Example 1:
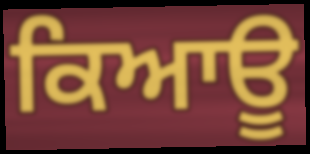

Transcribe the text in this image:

ਕਿਆਊ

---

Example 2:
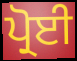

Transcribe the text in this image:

ਪ੍ਰੋਈ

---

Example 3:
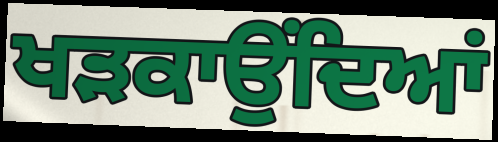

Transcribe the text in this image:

ਖੜਕਾਉਂਦਿਆਂ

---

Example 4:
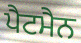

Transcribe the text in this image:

ਪੈਟਮੈਨ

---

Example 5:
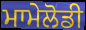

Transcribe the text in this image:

ਮਾਮੇਲੋਡੀ